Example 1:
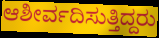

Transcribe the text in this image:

ಆಶೀರ್ವದಿಸುತ್ತಿದ್ದರು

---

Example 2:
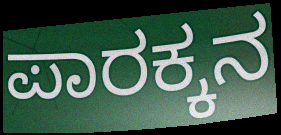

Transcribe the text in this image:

ಪಾರಕ್ಕನ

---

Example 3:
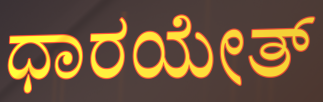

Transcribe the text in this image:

ಧಾರಯೇತ್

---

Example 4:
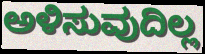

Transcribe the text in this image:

ಅಳಿಸುವುದಿಲ್ಲ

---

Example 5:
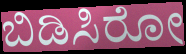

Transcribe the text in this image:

ಬಿಡಿಸಿರೋ